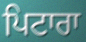
ਪਿਟਾਰਾ